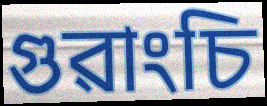
গুৱাংচি